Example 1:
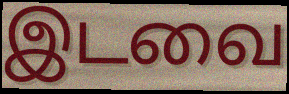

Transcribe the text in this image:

இடவை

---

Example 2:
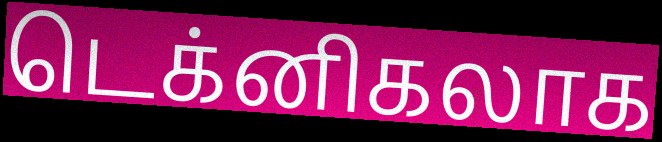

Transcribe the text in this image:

டெக்னிகலாக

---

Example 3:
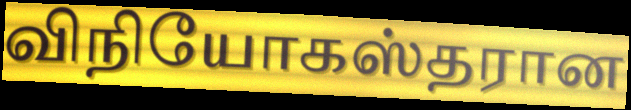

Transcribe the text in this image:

விநியோகஸ்தரான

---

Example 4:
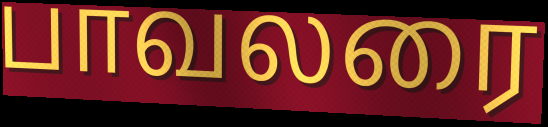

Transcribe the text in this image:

பாவலரை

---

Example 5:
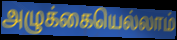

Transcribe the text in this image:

அழுக்கையெல்லாம்